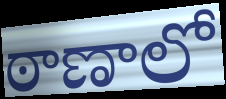
ఠాణాలో